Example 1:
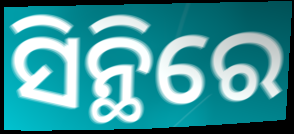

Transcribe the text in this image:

ସିନ୍ଥିରେ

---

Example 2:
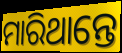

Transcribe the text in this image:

ମାରିଥାନ୍ତେ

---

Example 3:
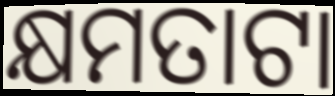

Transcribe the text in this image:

କ୍ଷମତାଟା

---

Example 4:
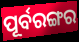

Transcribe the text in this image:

ପୂର୍ବରଙ୍ଗର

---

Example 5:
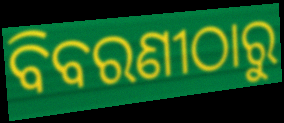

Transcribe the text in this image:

ବିବରଣୀଠାରୁ